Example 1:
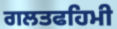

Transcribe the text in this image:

ਗਲਤਫਹਿਮੀ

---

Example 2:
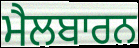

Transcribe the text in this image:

ਮੈਲਬਾਰਨ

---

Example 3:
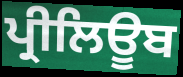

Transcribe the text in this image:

ਪ੍ਰੀਲਿਊਬ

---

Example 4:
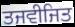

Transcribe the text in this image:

ਤਜਵੀਜਿਤ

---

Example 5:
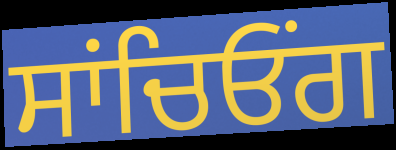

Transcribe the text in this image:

ਸਾਂਚਿਓਂਗ